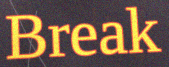
Break